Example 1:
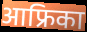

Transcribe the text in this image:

आफ्रिका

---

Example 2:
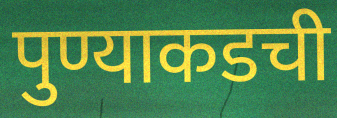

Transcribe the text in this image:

पुण्याकडची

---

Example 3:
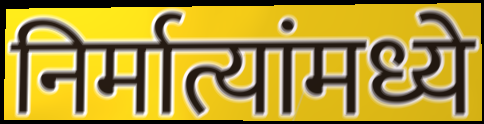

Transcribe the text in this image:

निर्मात्यांमध्ये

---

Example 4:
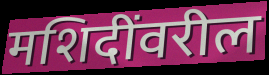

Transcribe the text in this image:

मशिदींवरील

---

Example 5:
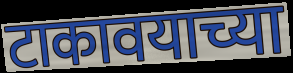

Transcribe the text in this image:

टाकावयाच्या